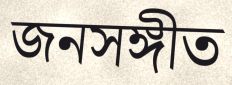
জনসঙ্গীত